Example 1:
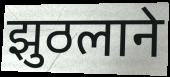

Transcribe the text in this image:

झुठलाने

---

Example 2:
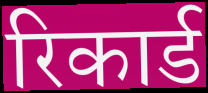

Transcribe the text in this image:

रिकार्ड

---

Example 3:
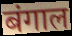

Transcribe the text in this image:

बंगाल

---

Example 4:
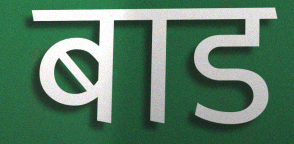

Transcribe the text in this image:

बाड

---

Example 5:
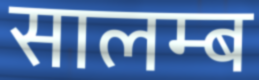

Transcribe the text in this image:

सालम्ब